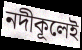
নদীকূলেই